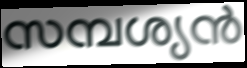
സമ്പശ്യൻ